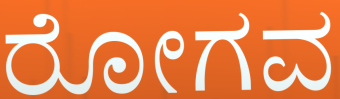
ರೋಗವ